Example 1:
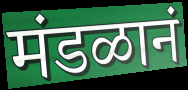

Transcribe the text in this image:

मंडळानं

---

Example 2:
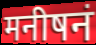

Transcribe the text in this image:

मनीषनं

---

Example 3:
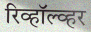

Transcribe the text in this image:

रिव्हॉल्व्हर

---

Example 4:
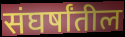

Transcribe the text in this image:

संघर्षांतील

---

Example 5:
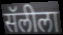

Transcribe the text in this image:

सॅलीला